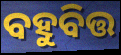
ବହୁବିତ୍ତ